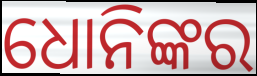
ଧୋନିଙ୍କର